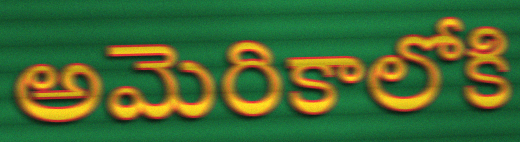
అమెరికాలోకి